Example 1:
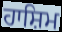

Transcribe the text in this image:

ਹਾਸ਼ਿਮ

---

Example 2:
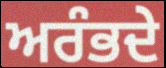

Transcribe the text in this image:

ਅਰੰਭਦੇ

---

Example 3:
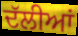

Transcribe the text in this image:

ਦੱਲੀਆਂ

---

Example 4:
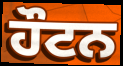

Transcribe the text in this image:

ਹੌਟਨ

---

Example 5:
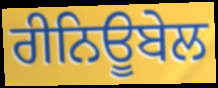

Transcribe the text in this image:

ਰੀਨਿਊਬੇਲ